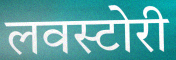
लवस्‍टोरी